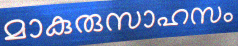
മാകുരുസാഹസം